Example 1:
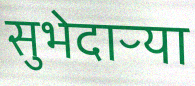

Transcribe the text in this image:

सुभेदाऱ्या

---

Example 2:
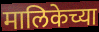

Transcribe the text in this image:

मालिकेच्या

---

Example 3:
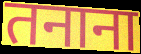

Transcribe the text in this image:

तनाना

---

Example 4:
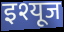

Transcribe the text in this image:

इश्यूज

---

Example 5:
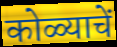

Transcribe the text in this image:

कोळ्याचें